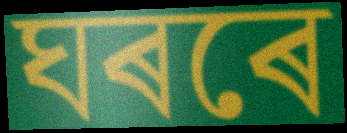
ঘৰৰে